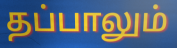
தப்பாலும்